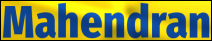
Mahendran